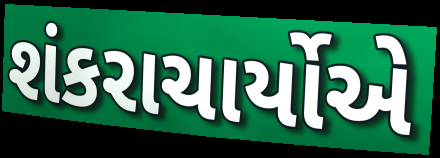
શંકરાચાર્યોએ